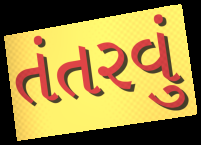
તંતરવું